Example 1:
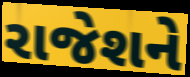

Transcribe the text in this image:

રાજેશને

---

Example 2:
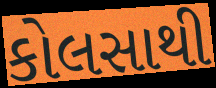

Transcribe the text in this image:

કોલસાથી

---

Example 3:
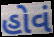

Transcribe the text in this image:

હોવં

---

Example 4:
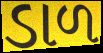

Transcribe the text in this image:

ડાળ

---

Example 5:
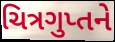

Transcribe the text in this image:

ચિત્રગુપ્તને